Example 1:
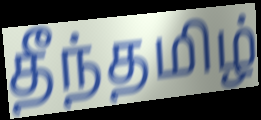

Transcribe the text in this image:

தீந்தமிழ்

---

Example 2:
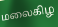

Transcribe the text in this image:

மலைகிழ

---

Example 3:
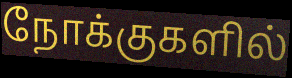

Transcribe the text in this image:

நோக்குகளில்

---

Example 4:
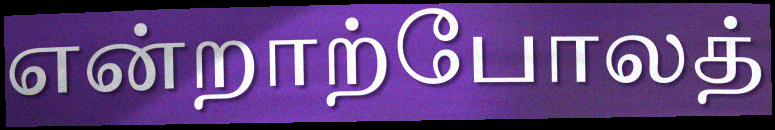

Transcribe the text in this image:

என்றாற்போலத்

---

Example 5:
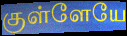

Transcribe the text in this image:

குள்ளேயே